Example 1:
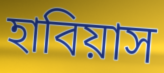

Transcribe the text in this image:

হাবিয়াস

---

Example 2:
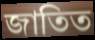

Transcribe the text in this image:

জাতিত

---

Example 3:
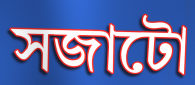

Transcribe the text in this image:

সজাটো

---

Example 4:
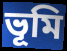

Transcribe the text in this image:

ভূমি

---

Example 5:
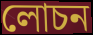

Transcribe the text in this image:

লোচন